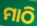
ମାଠି